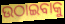
ଉଠାଇବାକୁ